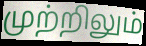
முற்றிலும்